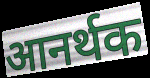
आनर्थक